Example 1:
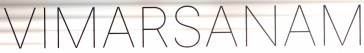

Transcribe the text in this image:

VIMARSANAM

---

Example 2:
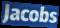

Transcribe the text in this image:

Jacobs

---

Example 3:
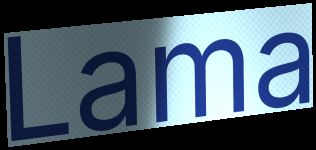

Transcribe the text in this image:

Lama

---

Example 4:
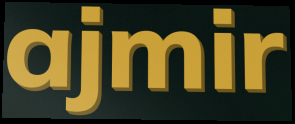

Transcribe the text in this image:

ajmir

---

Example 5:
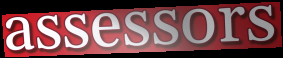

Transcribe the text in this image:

assessors